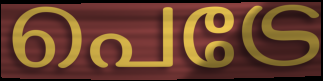
പെട്രേ